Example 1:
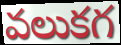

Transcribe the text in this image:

వలుకగ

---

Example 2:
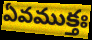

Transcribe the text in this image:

ఏవముక్తః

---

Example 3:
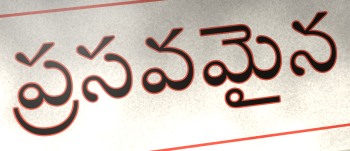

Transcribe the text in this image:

ప్రసవమైన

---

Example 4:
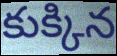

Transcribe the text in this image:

కుక్కిన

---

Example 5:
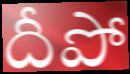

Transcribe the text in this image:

దీపో